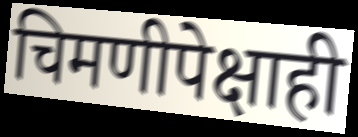
चिमणीपेक्षाही